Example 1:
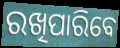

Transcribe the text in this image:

ରଖିପାରିବେ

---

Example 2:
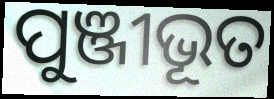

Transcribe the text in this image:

ପୁଞ୍ଜୀଭୂତ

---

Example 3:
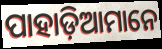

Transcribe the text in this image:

ପାହାଡ଼ିଆମାନେ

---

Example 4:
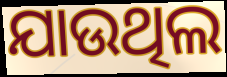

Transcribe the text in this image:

ଯାଉଥିଲ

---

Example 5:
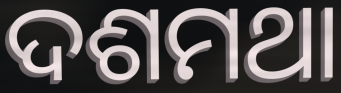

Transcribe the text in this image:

ଦଶମଥା